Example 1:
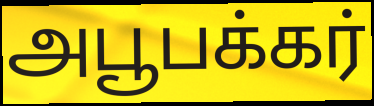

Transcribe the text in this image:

அபூபக்கர்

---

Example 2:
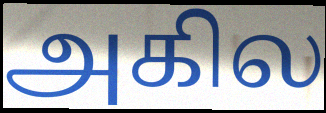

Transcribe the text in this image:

அகில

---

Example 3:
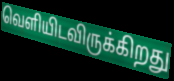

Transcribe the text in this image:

வெளியிடவிருக்கிறது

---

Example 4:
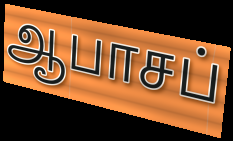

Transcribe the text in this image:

ஆபாசப்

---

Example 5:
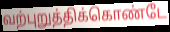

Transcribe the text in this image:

வற்புறுத்திக்கொண்டே